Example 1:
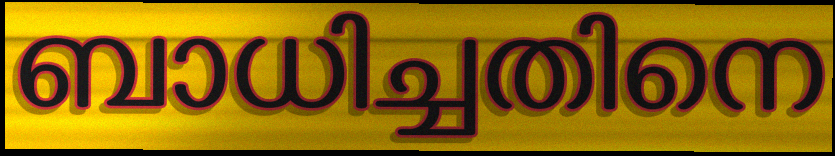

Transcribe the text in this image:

ബാധിച്ചതിനെ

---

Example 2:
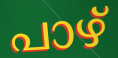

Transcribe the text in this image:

പാഴ്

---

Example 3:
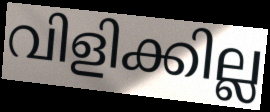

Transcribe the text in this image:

വിളിക്കില്ല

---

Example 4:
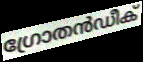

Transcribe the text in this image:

ഗ്രോതൻഡീക്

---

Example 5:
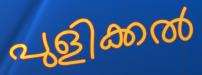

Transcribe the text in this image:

പുളിക്കൽ